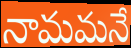
నామమనే